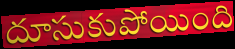
దూసుకుపోయింది